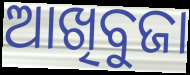
ଆଖିବୁଜା